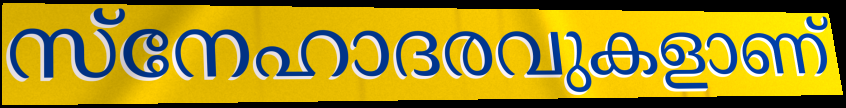
സ്നേഹാദരവുകളാണ്